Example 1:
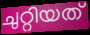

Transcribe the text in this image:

ചുറ്റിയത്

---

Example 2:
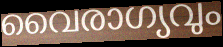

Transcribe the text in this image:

വൈരാഗ്യവും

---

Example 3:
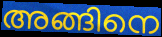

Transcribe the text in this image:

അങ്ങിനെ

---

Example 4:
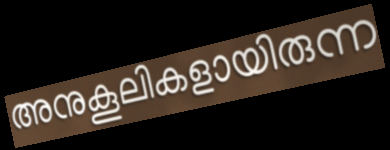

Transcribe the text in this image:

അനുകൂലികളായിരുന്ന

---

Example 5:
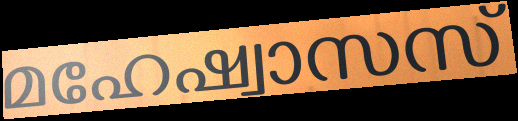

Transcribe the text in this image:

മഹേഷ്വാസസ്